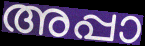
അപ്പാ